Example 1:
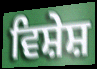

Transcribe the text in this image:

ਵਿਸ਼ੇਸ਼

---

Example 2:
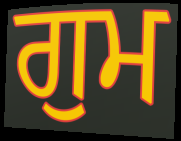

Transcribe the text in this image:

ਗੁਮ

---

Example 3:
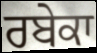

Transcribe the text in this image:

ਰਬੇਕਾ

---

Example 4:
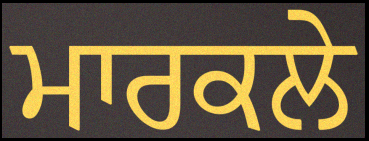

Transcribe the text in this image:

ਮਾਰਕਲੇ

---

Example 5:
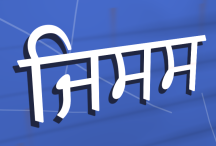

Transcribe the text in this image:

ਜਿਸਸ